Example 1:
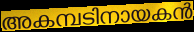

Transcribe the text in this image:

അകമ്പടിനായകൻ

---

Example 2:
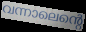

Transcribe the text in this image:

വന്നാലെന്റെ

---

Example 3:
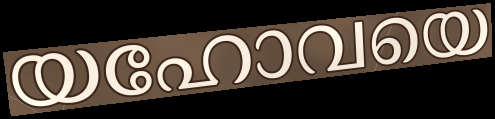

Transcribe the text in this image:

യഹോവയെ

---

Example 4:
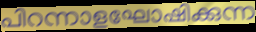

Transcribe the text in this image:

പിറന്നാളഘോഷിക്കുന്ന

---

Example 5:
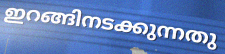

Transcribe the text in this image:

ഇറങ്ങിനടക്കുന്നതു